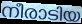
നീരാടിയ